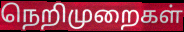
நெறிமுறைகள்